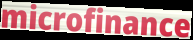
microfinance